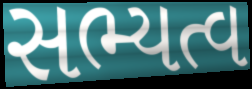
સભ્યત્વ